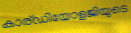
കാര്ഡിയോളജിയുടെ